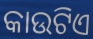
କାଉଟିଏ